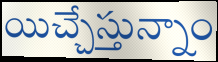
యిచ్చేస్తున్నాం